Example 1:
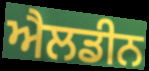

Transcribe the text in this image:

ਐਲਡੀਨ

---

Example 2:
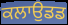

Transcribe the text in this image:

ਕਲਾਉਡਡ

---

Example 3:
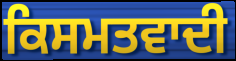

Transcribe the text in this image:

ਕਿਸਮਤਵਾਦੀ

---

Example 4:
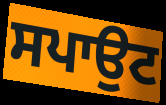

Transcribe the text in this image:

ਸਪਾਉਟ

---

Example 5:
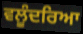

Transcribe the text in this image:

ਵਲੂੰਦਰਿਆ